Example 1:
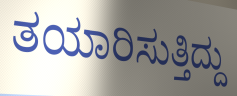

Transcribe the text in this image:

ತಯಾರಿಸುತ್ತಿದ್ದು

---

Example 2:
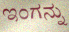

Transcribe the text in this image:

ಇಂಗನ್ನು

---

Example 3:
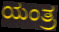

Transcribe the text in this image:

ಯಂತ್ರ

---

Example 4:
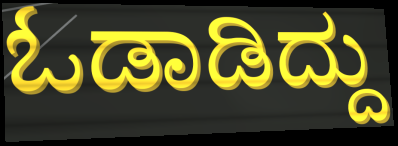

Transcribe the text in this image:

ಓಡಾಡಿದ್ದು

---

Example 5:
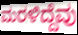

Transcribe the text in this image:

ಮರಳಿದ್ದೆವು